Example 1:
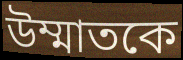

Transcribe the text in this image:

উম্মাতকে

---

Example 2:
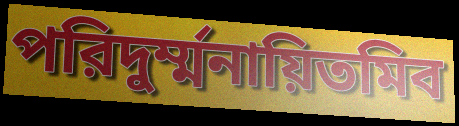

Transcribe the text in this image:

পরিদুর্ম্মনায়িতমিব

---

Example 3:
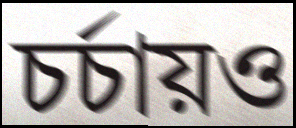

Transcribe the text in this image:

চর্চায়ও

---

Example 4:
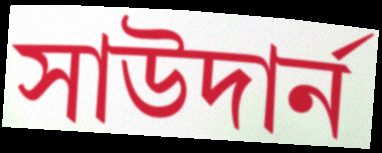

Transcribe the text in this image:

সাউদার্ন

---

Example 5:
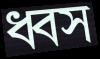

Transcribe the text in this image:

ধ্বস